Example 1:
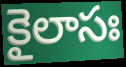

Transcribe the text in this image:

కైలాసః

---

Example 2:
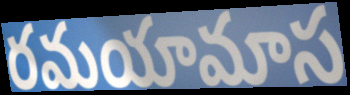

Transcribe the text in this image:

రమయామాస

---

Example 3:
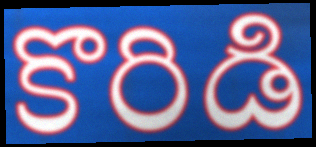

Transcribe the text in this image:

కొరిడి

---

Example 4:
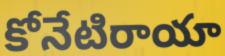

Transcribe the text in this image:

కోనేటిరాయా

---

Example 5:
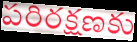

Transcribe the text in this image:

పరిరక్షణకు